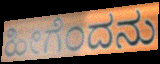
ಹೀಗೆಂದನು